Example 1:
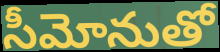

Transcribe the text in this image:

సీమోనుతో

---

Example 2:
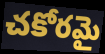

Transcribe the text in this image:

చకోరమై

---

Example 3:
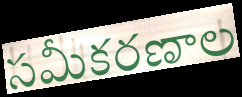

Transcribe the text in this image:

సమీకరణాల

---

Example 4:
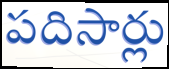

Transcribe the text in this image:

పదిసార్లు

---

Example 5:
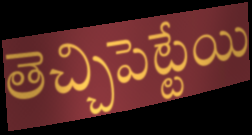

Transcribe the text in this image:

తెచ్చిపెట్టేయి